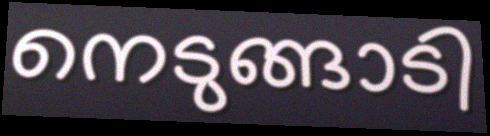
നെടുങ്ങാടി